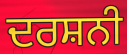
ਦਰਸ਼ਨੀ